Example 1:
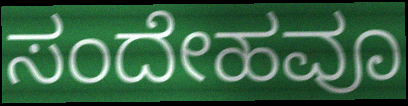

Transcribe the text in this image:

ಸಂದೇಹವೂ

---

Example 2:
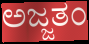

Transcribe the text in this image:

ಅಜ್ಜತಂ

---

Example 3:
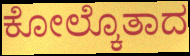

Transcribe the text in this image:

ಕೋಲ್ಕೊತಾದ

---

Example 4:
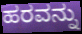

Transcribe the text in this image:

ಹರವನ್ನು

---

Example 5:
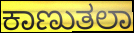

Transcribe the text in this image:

ಕಾಣುತಲಾ